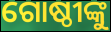
ଗୋଷ୍ଠୀଙ୍କୁ